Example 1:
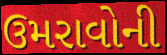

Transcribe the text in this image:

ઉમરાવોની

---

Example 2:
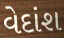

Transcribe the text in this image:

વેદાંશ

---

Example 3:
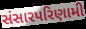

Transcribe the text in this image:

સંસારપરિણામી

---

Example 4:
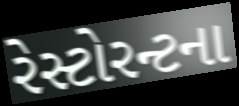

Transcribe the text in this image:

રેસ્ટોરન્ટના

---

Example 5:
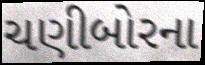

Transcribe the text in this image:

ચણીબોરના